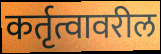
कर्तृत्वावरील